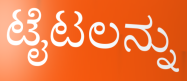
ಟೈಟಲನ್ನು